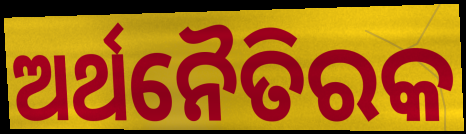
ଅର୍ଥନୈତିରକ